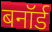
बनॉर्ड